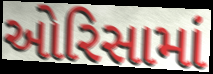
ઓરિસામાં